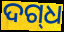
ଦଗ୍‍ଧ